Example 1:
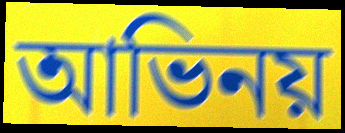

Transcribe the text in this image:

আভিনয়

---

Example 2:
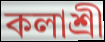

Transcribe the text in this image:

কলাশ্রী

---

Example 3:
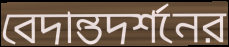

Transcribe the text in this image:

বেদান্তদর্শনের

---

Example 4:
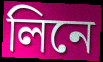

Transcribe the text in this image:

লিনে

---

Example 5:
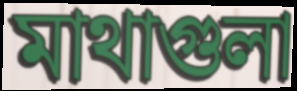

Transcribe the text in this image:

মাথাগুলা